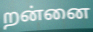
றன்னை